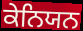
ਕੇਨਿਯਨ